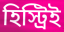
হিস্ট্রিই